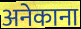
अनेकाना